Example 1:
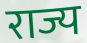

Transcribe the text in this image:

राज्‍य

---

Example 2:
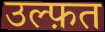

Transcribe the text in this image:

उल्फ़त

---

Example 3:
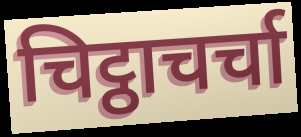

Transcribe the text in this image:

चिट्ठाचर्चा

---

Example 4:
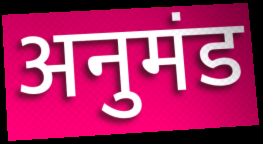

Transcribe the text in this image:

अनुमंड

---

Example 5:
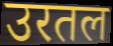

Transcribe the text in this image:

उरतल